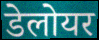
डेलोयर